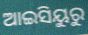
ଆଇସିୟୁରୁ